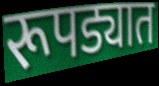
रूपड्यात